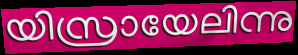
യിസ്രായേലിന്നു